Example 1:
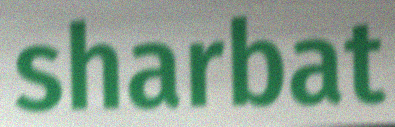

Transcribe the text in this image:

sharbat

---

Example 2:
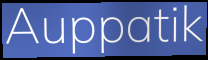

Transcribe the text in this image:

Auppatik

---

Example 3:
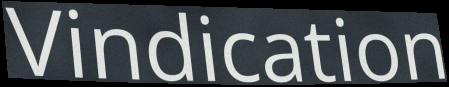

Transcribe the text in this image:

Vindication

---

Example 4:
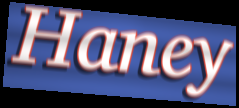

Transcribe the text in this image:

Haney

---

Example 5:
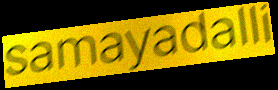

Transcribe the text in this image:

samayadalli